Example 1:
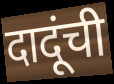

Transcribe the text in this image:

दादूंची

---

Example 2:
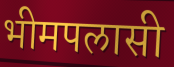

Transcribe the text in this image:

भीमपलासी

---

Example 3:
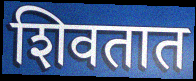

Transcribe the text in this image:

शिवतात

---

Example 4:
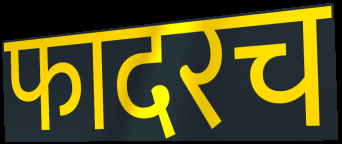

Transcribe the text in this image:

फादरच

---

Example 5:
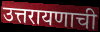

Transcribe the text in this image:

उत्तरायणाची